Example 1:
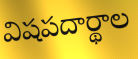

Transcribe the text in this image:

విషపదార్థాల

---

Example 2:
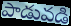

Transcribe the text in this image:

పాడువడి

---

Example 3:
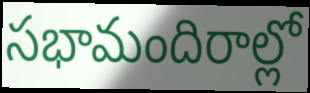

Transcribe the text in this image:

సభామందిరాల్లో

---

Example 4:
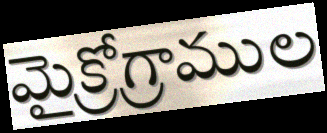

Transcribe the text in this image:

మైక్రోగ్రాముల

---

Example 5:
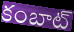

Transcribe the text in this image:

కంబాట్